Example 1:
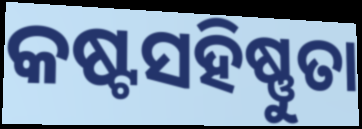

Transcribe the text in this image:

କଷ୍ଟସହିଷ୍ଣୁତା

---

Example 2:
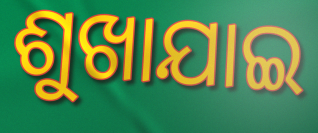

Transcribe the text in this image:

ଶୁଖାଯାଇ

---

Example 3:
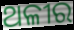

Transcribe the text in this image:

ଥଳୀର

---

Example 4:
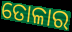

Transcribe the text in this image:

ତୋଳାର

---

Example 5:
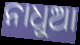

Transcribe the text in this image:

ନାଧୁଆ